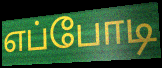
எப்போடி